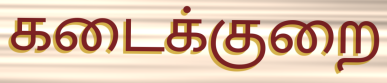
கடைக்குறை